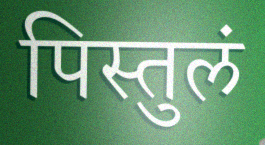
पिस्तुलं